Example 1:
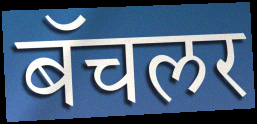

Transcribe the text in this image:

बॅचलर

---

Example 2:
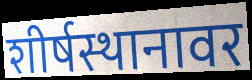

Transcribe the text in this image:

शीर्षस्थानावर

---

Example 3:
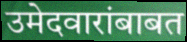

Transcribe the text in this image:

उमेदवारांबाबत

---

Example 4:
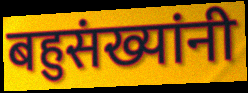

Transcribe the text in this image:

बहुसंख्यांनी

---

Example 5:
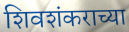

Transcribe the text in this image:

शिवशंकराच्या